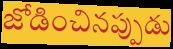
జోడించినప్పుడు